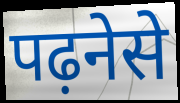
पढ़नेसे